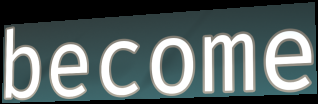
become